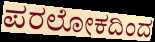
ಪರಲೋಕದಿಂದ